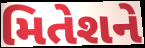
મિતેશને